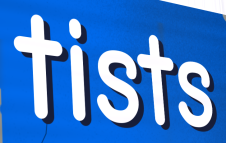
tists